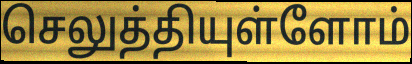
செலுத்தியுள்ளோம்